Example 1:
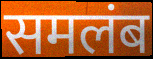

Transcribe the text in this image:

समलंब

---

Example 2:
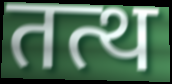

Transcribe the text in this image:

तत्थ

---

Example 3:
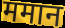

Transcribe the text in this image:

ममान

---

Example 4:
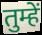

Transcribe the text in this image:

तुम्‍हें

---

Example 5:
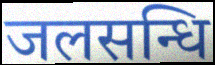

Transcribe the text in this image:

जलसन्धि